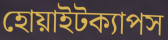
হোয়াইটক্যাপস